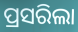
ପ୍ରସରିଲା